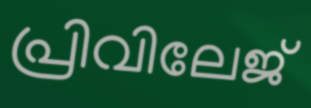
പ്രിവിലേജ്